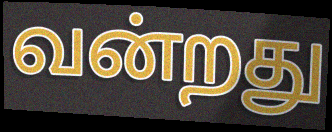
வன்றது